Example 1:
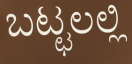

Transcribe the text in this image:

ಬಟ್ಟಲಲ್ಲಿ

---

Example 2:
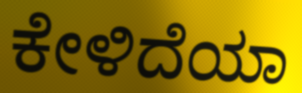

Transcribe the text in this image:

ಕೇಳಿದೆಯಾ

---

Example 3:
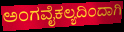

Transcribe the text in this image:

ಅಂಗವೈಕಲ್ಯದಿಂದಾಗಿ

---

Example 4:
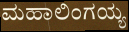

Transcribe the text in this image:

ಮಹಾಲಿಂಗಯ್ಯ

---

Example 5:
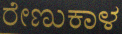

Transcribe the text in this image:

ರೇಣುಕಾಳ